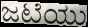
ಜಟೆಯು